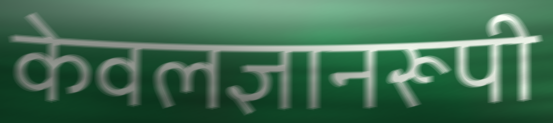
केवलज्ञानरूपी